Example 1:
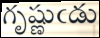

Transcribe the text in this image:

గృష్ణుఁడు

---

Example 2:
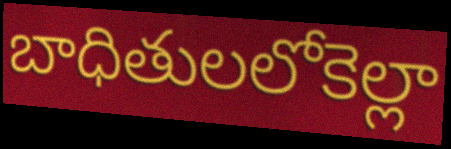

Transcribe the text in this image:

బాధితులలోకెల్లా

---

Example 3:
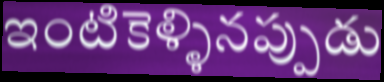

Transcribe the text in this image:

ఇంటికెళ్ళినప్పుడు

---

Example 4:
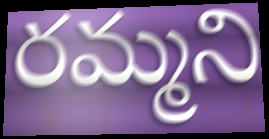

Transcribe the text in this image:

రమ్మని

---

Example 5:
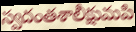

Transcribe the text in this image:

స్వదంతశాలీక్షుమపి